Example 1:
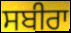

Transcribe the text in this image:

ਸਬੀਰਾ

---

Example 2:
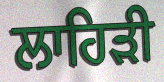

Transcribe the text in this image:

ਲਾਹਿੜੀ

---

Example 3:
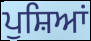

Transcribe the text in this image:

ਪੁਸ਼ਿਆਂ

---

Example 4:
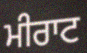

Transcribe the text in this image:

ਮੀਰਾਟ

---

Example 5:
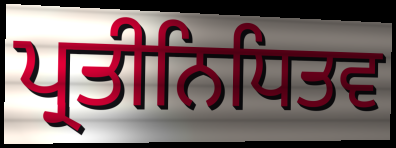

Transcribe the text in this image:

ਪ੍ਰਤੀਨਿਧਿਤਵ